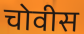
चोवीस